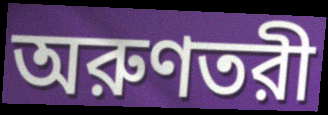
অরুণতরী